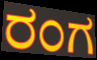
ರಂಗ